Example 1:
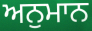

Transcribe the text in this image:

ਅਨੁਮਾਨ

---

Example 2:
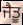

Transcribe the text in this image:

ਜੈਤੂ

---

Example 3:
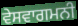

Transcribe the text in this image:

ਵੇਸਵਾਗਮਨੀ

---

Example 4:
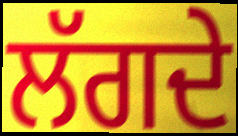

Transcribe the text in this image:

ਲੱਗਦੇ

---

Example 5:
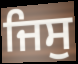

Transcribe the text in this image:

ਜਿਸੁ